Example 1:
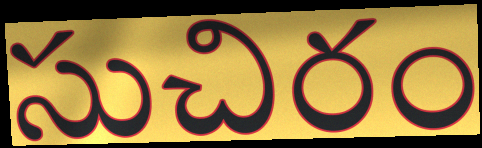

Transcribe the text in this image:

సుచిరం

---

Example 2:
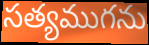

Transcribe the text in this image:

సత్యముగను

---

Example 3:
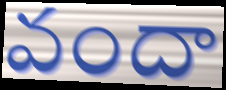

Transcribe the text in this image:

వందా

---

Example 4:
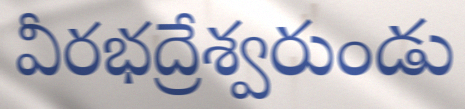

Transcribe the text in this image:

వీరభద్రేశ్వరుండు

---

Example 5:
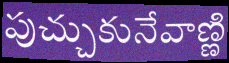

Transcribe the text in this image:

పుచ్చుకునేవాణ్ణి